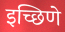
इच्छिणे